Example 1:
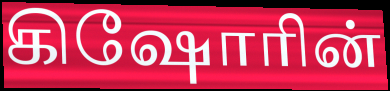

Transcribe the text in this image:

கிஷோரின்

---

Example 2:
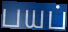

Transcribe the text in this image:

பயப்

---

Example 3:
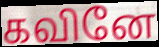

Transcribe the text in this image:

கவினே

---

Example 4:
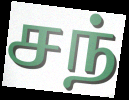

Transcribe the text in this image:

சந்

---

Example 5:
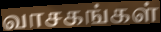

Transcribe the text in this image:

வாசகங்கள்